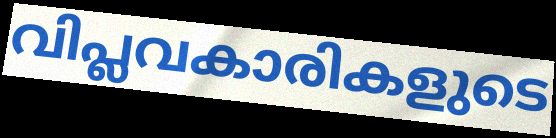
വിപ്ലവകാരികളുടെ